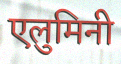
एलुमिनी